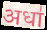
अधा॑